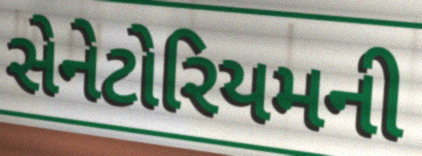
સેનેટોરિયમની